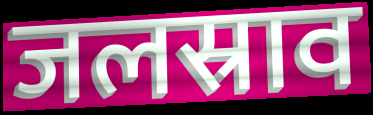
जलस्राव